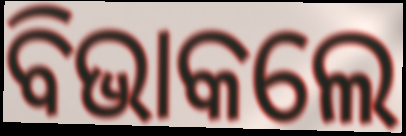
ବିଭାକଲେ